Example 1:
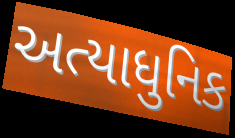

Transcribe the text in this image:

અત્યાધુનિક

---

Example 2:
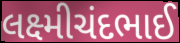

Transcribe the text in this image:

લક્ષ્મીચંદભાઈ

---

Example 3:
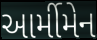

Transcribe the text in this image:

આર્મીમેન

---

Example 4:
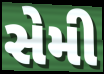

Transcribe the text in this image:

સેમી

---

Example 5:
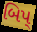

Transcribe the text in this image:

બિપ્